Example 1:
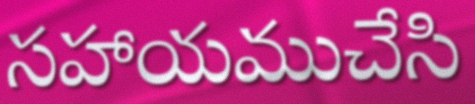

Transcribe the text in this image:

సహాయముచేసి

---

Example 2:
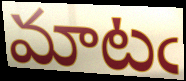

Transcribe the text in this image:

మాటఁ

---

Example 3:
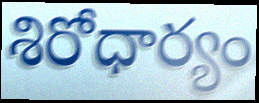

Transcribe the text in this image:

శిరోధార్యం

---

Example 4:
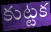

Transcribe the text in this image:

కుట్టక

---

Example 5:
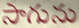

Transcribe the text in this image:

సాగును